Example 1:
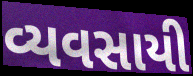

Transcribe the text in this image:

વ્યવસાયી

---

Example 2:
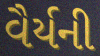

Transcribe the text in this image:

વૈર્યની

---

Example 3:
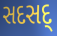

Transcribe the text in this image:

સદસદ્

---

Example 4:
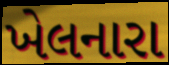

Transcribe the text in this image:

ખેલનારા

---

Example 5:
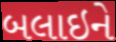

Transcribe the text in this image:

બલાઇને